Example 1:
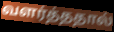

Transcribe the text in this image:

வளர்த்ததால்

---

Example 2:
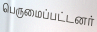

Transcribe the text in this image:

பெருமைப்பட்டனர்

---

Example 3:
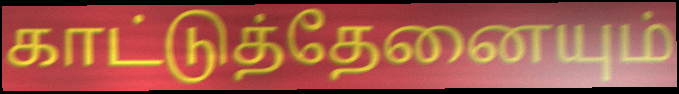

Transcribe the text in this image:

காட்டுத்தேனையும்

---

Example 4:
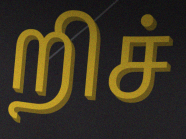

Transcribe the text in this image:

றிச்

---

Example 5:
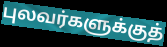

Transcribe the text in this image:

புலவர்களுக்குத்